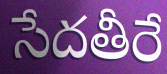
సేదతీరే